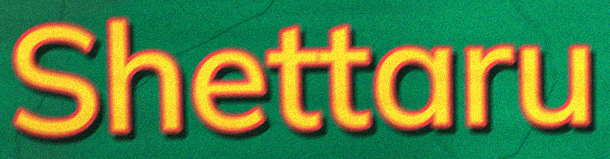
Shettaru